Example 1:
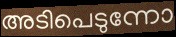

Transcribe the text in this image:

അടിപെടുന്നോ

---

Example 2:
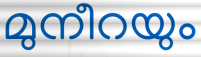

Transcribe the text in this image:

മുനീറയും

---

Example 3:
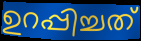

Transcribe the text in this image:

ഉറപ്പിച്ചത്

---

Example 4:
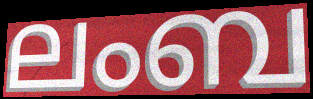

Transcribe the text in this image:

ലംബ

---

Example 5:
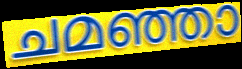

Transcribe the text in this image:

ചമഞ്ഞാ